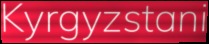
Kyrgyzstani